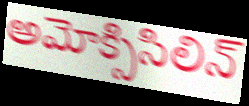
అమోక్సిసిలిన్